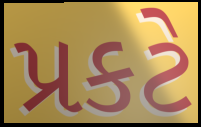
પ્રકટે